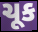
ચૂક